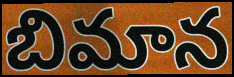
బిమాన